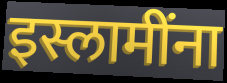
इस्लामींना